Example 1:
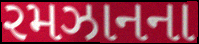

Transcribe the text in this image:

રમઝાનના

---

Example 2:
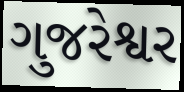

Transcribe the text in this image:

ગુજરેશ્વર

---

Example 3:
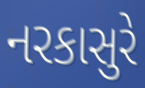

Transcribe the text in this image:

નરકાસુરે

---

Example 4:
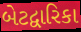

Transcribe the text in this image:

બેટદ્વારિકા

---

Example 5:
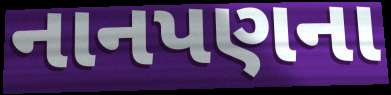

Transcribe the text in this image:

નાનપણના